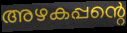
അഴകപ്പന്റെ